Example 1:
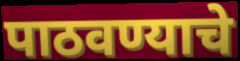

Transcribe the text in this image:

पाठवण्याचे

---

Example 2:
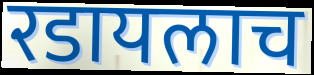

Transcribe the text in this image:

रडायलाच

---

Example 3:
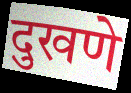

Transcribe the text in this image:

दुखणे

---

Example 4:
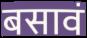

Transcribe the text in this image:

बसावं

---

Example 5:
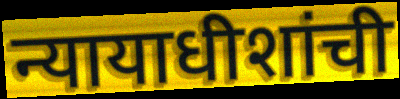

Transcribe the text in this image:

न्यायाधीशांची